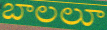
బాలలూ